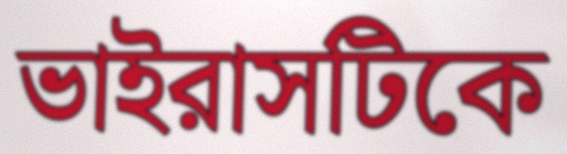
ভাইরাসটিকে